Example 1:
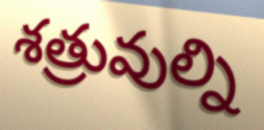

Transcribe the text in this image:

శత్రువుల్ని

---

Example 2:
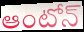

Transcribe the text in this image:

ఆంటోన్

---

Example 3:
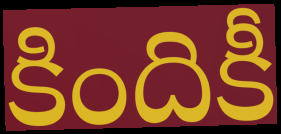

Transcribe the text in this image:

కిందికీ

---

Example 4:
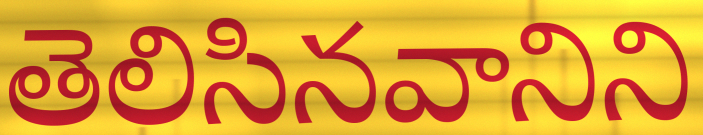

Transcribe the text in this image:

తెలిసినవానిని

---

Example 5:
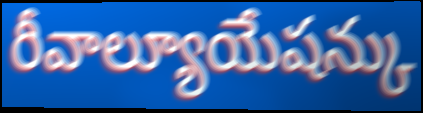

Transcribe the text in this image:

రీవాల్యూయేషన్కు